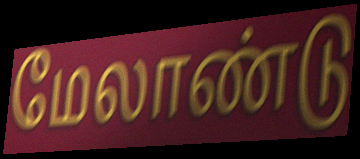
மேலாண்டு